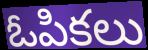
ఓపికలు